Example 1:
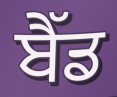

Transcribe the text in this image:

ਬੈੱਡ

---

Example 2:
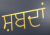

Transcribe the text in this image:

ਸ਼ਬਦਾਂ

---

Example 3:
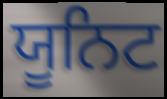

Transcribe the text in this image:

ਯੂਨਿਟ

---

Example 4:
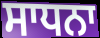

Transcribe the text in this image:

ਸਾਧਨਾ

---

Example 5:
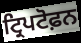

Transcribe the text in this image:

ਟ੍ਰਿਪਟੋਫ਼ਨ